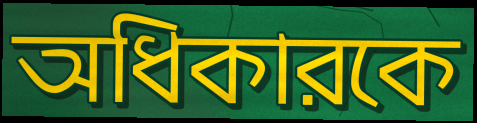
অধিকারকে